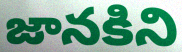
జానకిని